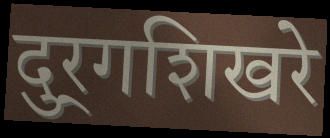
दुर्गशिखरे